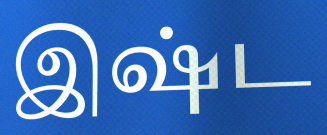
இஷ்ட